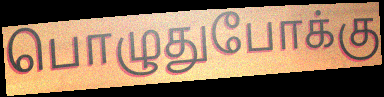
பொழுதுபோக்கு